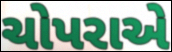
ચોપરાએ